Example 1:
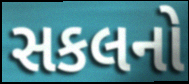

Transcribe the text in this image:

સકલનો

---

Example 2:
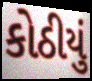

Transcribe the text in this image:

કોઠીયું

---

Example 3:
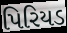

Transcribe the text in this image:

પિરિયડ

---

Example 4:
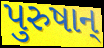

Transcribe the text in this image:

પુરુષાન્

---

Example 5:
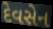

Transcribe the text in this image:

દેવસેન